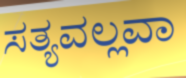
ಸತ್ಯವಲ್ಲವಾ